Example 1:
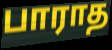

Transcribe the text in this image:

பாராத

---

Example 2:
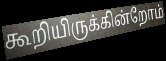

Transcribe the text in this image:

கூறியிருக்கின்றோம்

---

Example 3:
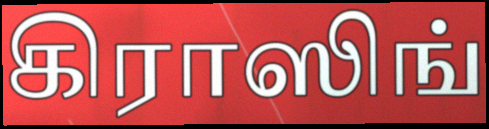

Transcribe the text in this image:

கிராஸிங்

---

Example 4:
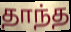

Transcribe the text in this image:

தாந்த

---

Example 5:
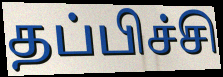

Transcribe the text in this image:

தப்பிச்சி